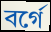
বর্গে